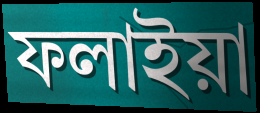
ফলাইয়া